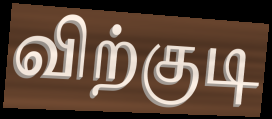
விற்குடி